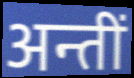
अन्तीं